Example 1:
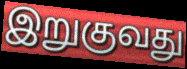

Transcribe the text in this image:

இறுகுவது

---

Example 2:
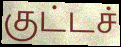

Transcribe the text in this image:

குட்டச்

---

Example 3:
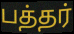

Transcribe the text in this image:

பத்தர்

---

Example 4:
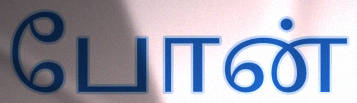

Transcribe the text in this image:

போன்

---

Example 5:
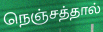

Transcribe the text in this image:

நெஞ்சத்தால்